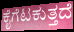
ಕೈಗೆಟಕುತ್ತದೆ